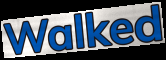
Walked